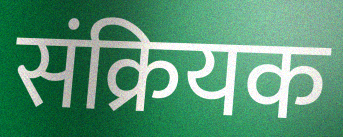
संक्रियक